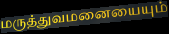
மருத்துவமனையையும்